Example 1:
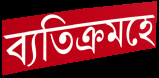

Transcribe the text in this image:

ব্যতিক্ৰমহে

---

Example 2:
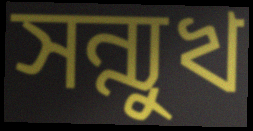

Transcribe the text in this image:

সন্মুখ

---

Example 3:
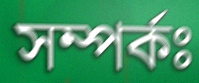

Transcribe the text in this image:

সম্পৰ্কঃ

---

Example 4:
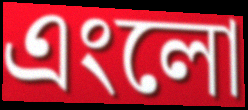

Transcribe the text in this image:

এংলো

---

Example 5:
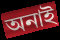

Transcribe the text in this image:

অনাই